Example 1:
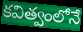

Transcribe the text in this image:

కవిత్వంలోనే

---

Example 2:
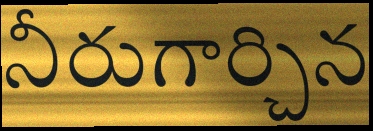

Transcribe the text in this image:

నీరుగార్చిన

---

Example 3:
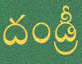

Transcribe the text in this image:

దండ్రీ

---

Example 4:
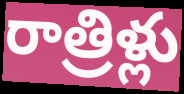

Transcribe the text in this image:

రాత్రిళ్లు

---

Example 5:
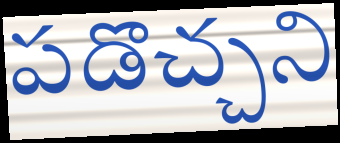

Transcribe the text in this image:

పడొచ్చని